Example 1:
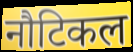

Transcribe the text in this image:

नौटिकल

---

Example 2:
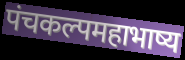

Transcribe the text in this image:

पंचकल्पमहाभाष्य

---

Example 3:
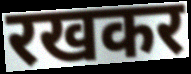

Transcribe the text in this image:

रखकर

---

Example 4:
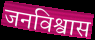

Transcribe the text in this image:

जनविश्वास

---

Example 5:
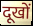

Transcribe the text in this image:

दूखों